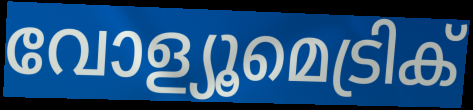
വോള്യൂമെട്രിക്